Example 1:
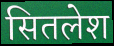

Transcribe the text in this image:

सितलेश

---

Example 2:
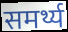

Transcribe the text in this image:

समर्थ्य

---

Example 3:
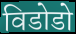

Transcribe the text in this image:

विडोडो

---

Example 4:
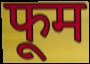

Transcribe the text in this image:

फूम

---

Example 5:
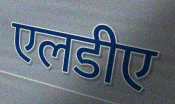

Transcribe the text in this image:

एलडीए